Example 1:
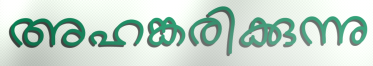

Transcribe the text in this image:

അഹങ്കരിക്കുന്നു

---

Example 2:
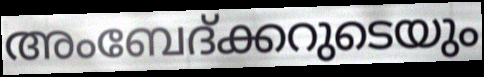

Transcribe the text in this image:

അംബേദ്ക്കറുടെയും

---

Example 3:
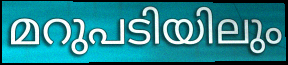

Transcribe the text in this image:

മറുപടിയിലും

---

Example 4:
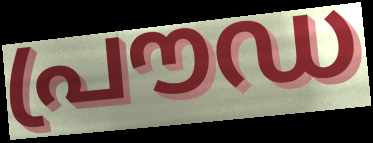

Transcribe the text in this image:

പ്രൗഡ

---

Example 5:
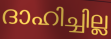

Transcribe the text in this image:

ദാഹിച്ചില്ല